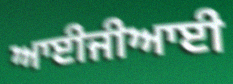
ਆਈਜੀਆਈ